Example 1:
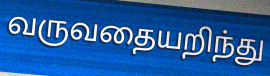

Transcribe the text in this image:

வருவதையறிந்து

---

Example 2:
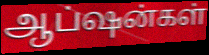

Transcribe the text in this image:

ஆப்ஷன்கள்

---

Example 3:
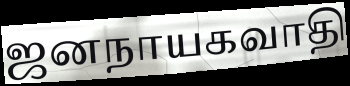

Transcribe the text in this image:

ஜனநாயகவாதி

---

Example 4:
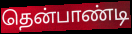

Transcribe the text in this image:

தென்பாண்டி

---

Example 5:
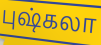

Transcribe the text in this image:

புஷ்கலா